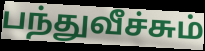
பந்துவீச்சும்